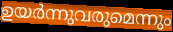
ഉയർന്നുവരുമെന്നും